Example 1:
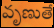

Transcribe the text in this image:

వృణుతే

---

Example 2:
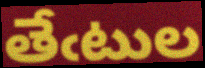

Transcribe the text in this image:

తేఁటుల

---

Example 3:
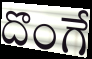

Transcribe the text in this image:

దొంగే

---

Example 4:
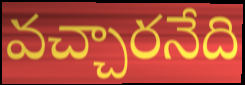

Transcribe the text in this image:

వచ్చారనేది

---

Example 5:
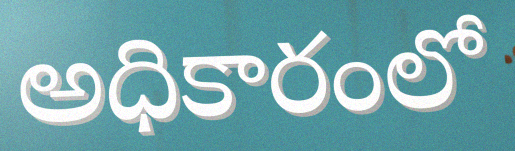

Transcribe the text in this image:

అధికారంలో